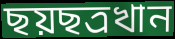
ছয়ছত্রখান